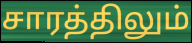
சாரத்திலும்